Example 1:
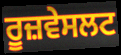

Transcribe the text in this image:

ਰੂਜ਼ਵੇਸਲਟ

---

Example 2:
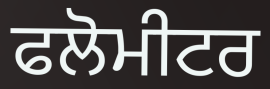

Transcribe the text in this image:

ਫਲੋਮੀਟਰ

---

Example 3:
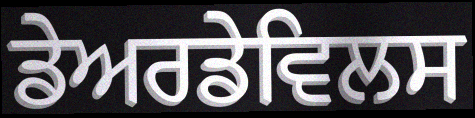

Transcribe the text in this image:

ਡੇਅਰਡੇਵਿਲਸ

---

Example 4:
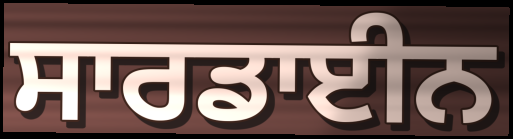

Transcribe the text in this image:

ਸਾਰਡਾਈਨ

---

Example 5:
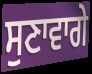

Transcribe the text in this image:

ਸੁਣਾਵਾਗੇ